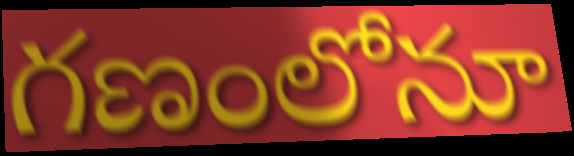
గణంలోనూ